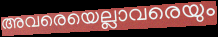
അവരെയെല്ലാവരെയും